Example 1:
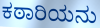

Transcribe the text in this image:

ಕಠಾರಿಯನು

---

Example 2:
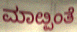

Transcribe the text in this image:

ಮಾೞ್ಪಂತೆ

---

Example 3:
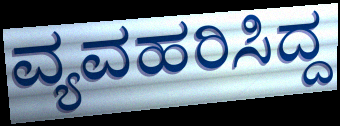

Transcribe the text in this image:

ವ್ಯವಹರಿಸಿದ್ದ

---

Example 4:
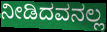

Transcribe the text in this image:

ನೀಡಿದವನಲ್ಲ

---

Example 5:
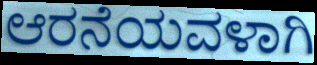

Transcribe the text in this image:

ಆರನೆಯವಳಾಗಿ